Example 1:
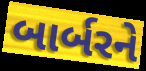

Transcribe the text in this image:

બાર્બરને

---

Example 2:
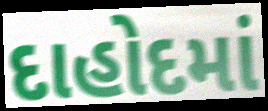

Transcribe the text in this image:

દાહોદમાં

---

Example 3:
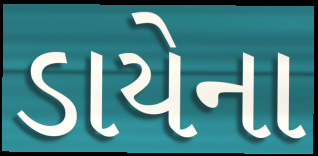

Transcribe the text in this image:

ડાયેના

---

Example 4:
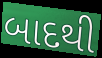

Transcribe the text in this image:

બાદથી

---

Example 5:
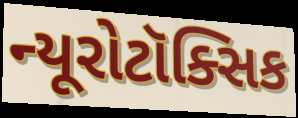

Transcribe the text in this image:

ન્યૂરોટૉક્સિક